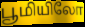
பூமியிலோ